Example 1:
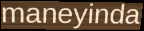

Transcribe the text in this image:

maneyinda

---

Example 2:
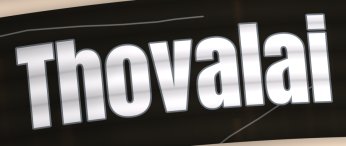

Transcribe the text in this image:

Thovalai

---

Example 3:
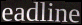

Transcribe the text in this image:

eadline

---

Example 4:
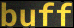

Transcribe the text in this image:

buff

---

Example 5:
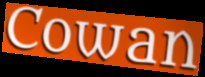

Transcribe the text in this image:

Cowan